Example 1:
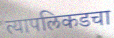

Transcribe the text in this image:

त्यापलिकडचा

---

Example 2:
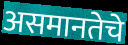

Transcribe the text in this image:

असमानतेचे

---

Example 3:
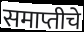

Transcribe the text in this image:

समाप्तीचे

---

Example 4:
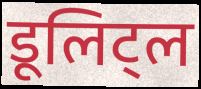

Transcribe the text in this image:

डूलिट्ल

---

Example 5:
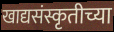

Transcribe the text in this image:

खाद्यसंस्कृतीच्या